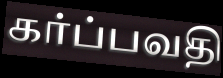
கர்ப்பவதி